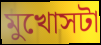
মুখোসটা